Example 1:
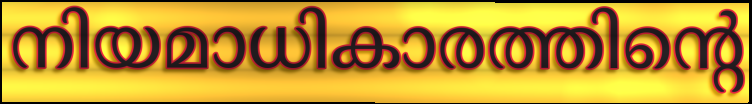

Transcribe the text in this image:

നിയമാധികാരത്തിന്റെ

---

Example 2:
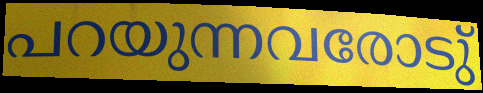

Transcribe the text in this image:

പറയുന്നവരോടു്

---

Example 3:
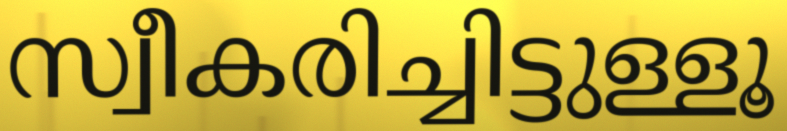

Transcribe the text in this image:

സ്വീകരിച്ചിട്ടുള്ളൂ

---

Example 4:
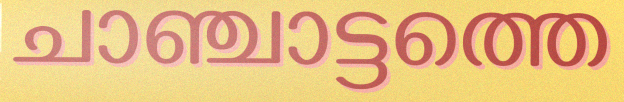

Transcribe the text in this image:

ചാഞ്ചാട്ടത്തെ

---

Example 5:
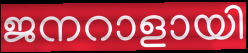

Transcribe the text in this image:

ജനറാളായി